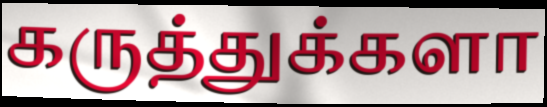
கருத்துக்களா